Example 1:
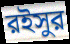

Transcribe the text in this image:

রইসুর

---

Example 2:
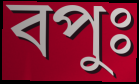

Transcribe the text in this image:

বপুঃ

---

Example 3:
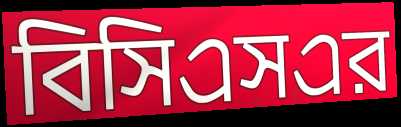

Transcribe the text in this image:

বিসিএসএর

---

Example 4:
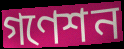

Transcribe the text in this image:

গণেশন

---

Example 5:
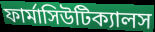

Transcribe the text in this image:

ফার্মাসিউটিক্যালস